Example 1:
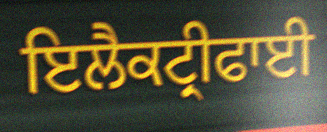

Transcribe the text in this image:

ਇਲੈਕਟ੍ਰੀਫਾਈ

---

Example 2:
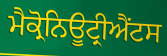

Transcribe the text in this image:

ਮੈਕ੍ਰੋਨਿਊਟ੍ਰੀਐਂਟਸ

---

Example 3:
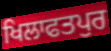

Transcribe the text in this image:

ਖਿਲਾਫਤਪੁਰ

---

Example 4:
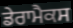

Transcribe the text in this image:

ਡੇਰਾਮੈਕਸ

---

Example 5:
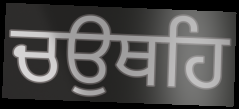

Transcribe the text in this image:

ਚਉਥਹਿ